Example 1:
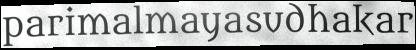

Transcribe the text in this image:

parimalmayasudhakar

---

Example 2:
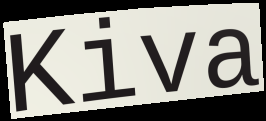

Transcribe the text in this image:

Kiva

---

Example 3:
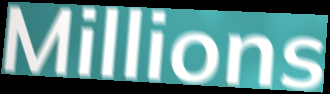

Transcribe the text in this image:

Millions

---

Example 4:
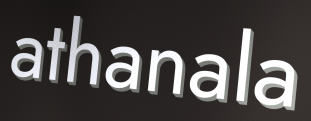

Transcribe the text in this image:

athanala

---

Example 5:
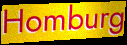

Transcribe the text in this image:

Homburg